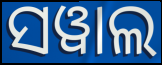
ସୱାଲ